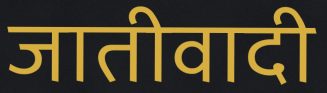
जातीवादी